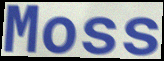
Moss